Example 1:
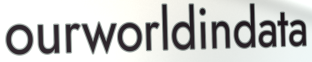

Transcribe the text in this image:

ourworldindata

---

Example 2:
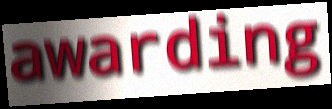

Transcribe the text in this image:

awarding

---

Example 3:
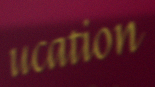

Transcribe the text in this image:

ucation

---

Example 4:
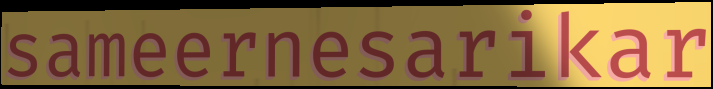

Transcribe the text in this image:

sameernesarikar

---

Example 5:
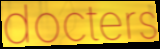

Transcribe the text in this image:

docters